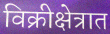
विक्रीक्षेत्रात